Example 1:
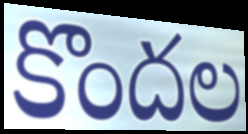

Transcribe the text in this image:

కొందల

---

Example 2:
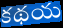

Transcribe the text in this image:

కథయ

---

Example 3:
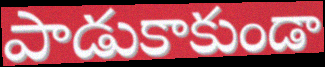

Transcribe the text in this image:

పాడుకాకుండా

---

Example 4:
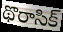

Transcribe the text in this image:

థొరాసిక్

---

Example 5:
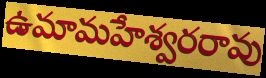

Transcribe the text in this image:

ఉమామహేశ్వరరావు